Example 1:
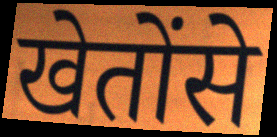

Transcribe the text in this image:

खेतोंसे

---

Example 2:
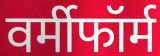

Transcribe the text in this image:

वर्मीफॉर्म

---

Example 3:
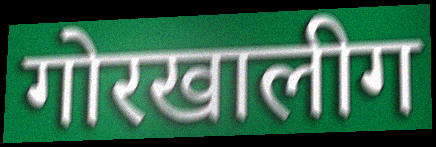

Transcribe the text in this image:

गोरखालीग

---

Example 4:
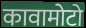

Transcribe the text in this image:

कावामोटो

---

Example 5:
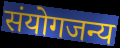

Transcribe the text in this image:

संयोगजन्य